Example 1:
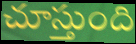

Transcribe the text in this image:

చూస్తుంది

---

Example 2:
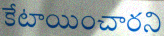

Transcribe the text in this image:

కేటాయించారని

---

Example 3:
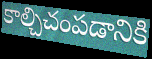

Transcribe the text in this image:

కాల్చిచంపడానికి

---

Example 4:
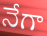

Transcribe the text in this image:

నేగా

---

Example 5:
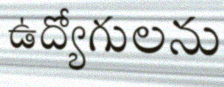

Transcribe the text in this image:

ఉద్యోగులను